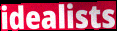
idealists